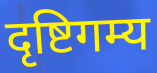
दृष्टिगम्य